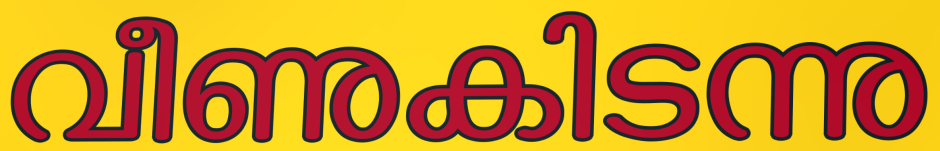
വീണുകിടന്നു